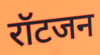
रॉटजन